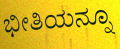
ಭೀತಿಯನ್ನೂ